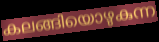
കലങ്ങിയൊഴുകുന്ന